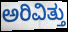
ಅರಿವಿತ್ತು